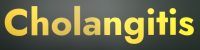
Cholangitis